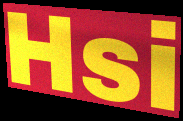
Hsi